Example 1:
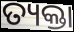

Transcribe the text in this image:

ତ୍ୟକ୍ତା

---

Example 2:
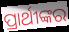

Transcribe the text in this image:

ପ୍ରାର୍ଥୀଙ୍କର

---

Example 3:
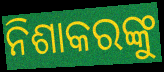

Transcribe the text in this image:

ନିଶାକରଙ୍କୁ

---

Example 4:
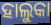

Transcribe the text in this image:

ହାଲୁକା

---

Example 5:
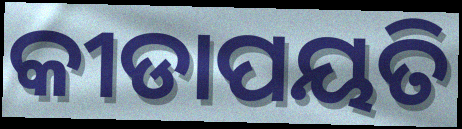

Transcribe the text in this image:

କୀଡାପୟତି